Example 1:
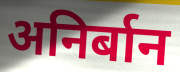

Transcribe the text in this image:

अनिर्बान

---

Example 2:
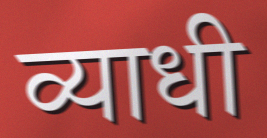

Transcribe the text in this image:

व्याधी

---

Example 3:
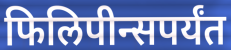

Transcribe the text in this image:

फिलिपीन्सपर्यंत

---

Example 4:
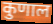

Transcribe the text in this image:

कुणाल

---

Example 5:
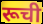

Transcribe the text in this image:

रूची